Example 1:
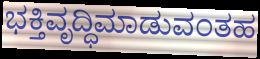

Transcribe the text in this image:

ಭಕ್ತಿವೃದ್ಧಿಮಾಡುವಂತಹ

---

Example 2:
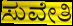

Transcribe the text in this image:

ಸುವೇತಿ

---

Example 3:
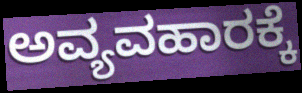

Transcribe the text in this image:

ಅವ್ಯವಹಾರಕ್ಕೆ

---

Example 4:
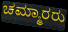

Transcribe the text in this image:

ಚಮ್ಮಾರರು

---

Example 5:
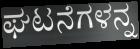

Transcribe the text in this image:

ಘಟನೆಗಳನ್ನ